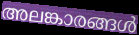
അലങ്കാരങ്ങൾ